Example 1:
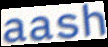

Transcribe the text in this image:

aash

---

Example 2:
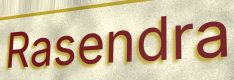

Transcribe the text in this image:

Rasendra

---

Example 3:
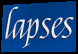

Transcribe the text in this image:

lapses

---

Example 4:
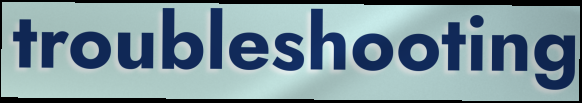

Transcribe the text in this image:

troubleshooting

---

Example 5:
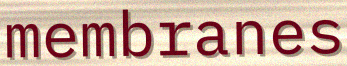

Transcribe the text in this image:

membranes